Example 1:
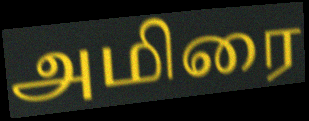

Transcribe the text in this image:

அமிரை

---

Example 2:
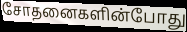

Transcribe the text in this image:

சோதனைகளின்போது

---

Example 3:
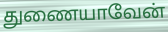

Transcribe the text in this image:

துணையாவேன்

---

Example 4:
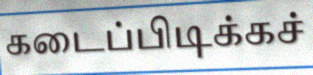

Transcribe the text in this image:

கடைப்பிடிக்கச்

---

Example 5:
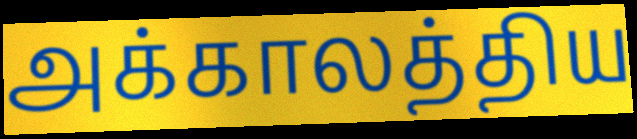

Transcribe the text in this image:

அக்காலத்திய